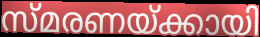
സ്മരണയ്ക്കായി